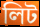
লিট